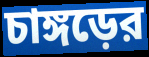
চাঙ্গড়ের